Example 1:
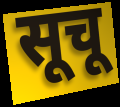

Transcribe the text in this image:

सूचू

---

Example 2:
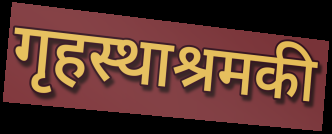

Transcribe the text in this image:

गृहस्थाश्रमकी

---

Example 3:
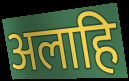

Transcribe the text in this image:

अलाहि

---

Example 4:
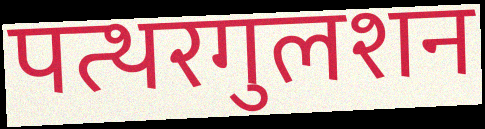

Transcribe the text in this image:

पत्थरगुलशन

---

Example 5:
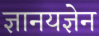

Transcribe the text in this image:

ज्ञानयज्ञेन